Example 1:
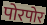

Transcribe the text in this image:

पोरपोर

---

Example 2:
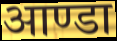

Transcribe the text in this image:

आण्डा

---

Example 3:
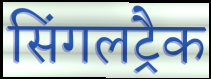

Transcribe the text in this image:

सिंगलट्रैक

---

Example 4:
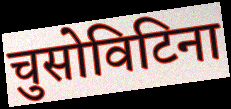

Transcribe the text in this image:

चुसोविटिना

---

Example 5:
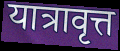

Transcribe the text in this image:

यात्रावृत्त